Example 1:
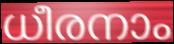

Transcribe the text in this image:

ധീരനാം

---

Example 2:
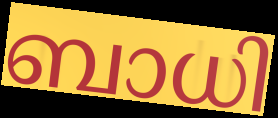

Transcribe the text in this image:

ബാധി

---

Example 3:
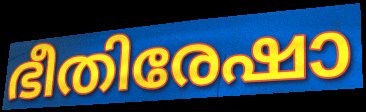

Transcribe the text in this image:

ഭീതിരേഷാ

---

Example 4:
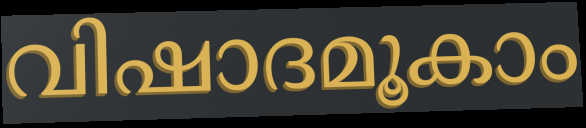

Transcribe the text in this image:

വിഷാദമൂകാം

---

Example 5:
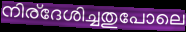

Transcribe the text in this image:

നിര്ദേശിച്ചതുപോലെ